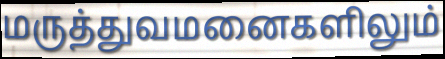
மருத்துவமனைகளிலும்